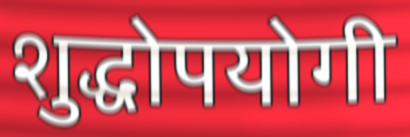
शुद्धोपयोगी